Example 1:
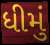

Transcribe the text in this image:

ધીમું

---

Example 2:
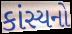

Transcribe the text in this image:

કાંસ્યનો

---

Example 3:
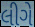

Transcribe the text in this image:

લીગે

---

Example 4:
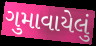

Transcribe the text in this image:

ગુમાવાયેલું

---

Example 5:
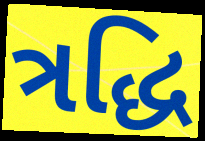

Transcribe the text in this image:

ત્રદ્ધિ